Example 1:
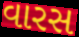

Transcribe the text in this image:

વારસ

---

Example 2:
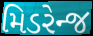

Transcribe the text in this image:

મિડરેન્જ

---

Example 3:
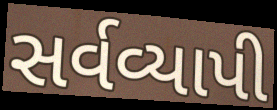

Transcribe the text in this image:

સર્વવ્યાપી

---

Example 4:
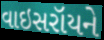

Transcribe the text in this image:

વાઇસરૉયને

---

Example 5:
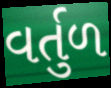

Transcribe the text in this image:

વર્તુળ